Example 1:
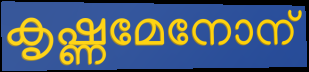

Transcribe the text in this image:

കൃഷ്ണമേനോന്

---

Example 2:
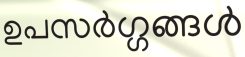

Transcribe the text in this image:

ഉപസർഗ്ഗങ്ങൾ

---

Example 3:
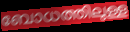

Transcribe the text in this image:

ബോധത്തിലുള്ള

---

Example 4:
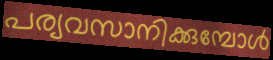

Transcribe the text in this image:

പര്യവസാനിക്കുമ്പോൾ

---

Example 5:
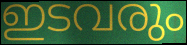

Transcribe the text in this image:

ഇടവരും